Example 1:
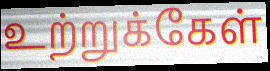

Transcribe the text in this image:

உற்றுக்கேள்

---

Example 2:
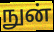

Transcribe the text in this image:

நுன்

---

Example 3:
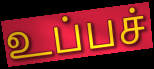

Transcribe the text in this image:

உப்பச்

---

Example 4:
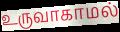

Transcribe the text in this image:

உருவாகாமல்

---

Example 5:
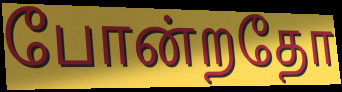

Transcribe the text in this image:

போன்றதோ